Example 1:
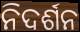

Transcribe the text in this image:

ନିଦର୍ଶନ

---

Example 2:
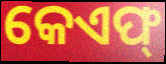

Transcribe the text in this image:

କେଏଫ୍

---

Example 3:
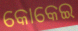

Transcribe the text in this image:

କୋକେଇ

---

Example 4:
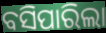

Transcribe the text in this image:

ବସିପାରିଲା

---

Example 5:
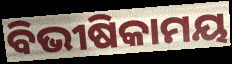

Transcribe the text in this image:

ବିଭୀଷିକାମୟ